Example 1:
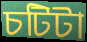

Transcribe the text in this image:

চটিটা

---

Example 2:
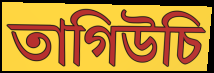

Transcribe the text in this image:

তাগিউচি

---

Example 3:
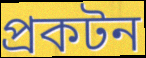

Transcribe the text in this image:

প্রকটন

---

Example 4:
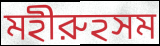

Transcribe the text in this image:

মহীরুহসম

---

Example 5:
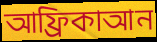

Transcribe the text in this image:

আফ্রিকাআন